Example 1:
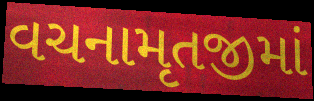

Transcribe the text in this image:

વચનામૃતજીમાં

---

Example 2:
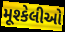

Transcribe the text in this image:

મૂશ્કેલીઓ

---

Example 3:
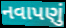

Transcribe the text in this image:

નવાપણું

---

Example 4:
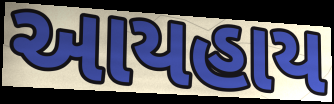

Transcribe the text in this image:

આયહાય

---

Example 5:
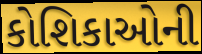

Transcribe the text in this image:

કોશિકાઓની